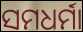
ସମଧର୍ମା